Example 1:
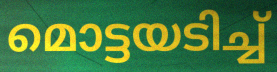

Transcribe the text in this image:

മൊട്ടയടിച്ച്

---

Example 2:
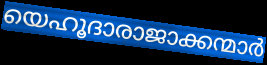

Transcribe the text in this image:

യെഹൂദാരാജാക്കന്മാർ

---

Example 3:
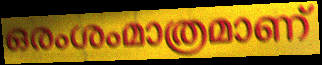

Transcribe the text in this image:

ഒരംശംമാത്രമാണ്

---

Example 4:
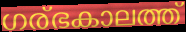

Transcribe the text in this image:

ഗര്ഭകാലത്ത്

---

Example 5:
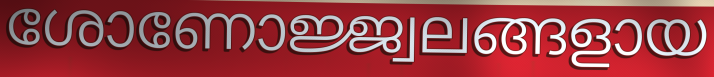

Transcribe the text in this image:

ശോണോജ്ജ്വലങ്ങളായ